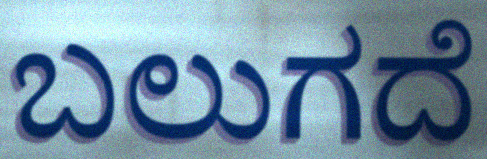
ಬಲುಗದೆ